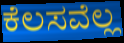
ಕೆಲಸವೆಲ್ಲ